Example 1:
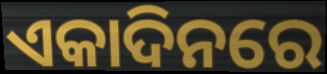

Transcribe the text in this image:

ଏକାଦିନରେ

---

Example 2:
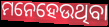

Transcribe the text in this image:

ମନେହେଉଥିବା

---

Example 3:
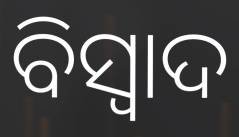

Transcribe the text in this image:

ବିସ୍ଵାଦ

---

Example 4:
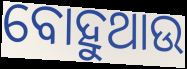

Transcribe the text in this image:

ବୋହୁଥାଉ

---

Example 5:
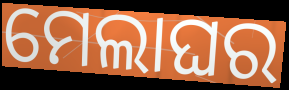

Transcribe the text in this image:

ମେଲାଘର